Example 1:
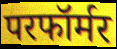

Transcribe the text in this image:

परफॉर्मर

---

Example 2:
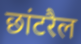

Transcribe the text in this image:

छांटरैल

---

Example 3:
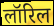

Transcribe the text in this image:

लॉरिल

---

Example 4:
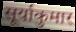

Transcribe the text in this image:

सूर्याकुमार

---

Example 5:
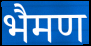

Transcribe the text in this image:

भैमण